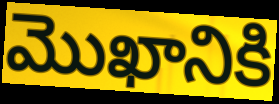
మొఖానికి